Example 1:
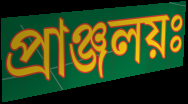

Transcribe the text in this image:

প্রাঞ্জলয়ঃ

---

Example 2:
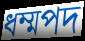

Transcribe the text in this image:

ধম্মপদ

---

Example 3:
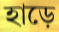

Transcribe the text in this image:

হাড়ে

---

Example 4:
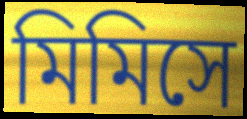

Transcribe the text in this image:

মিমিসে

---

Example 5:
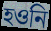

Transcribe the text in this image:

হওনি